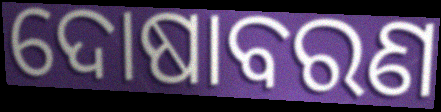
ଦୋଷାବରଣ